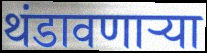
थंडावणाऱ्या